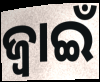
ଜ୍ଵାଇଁ